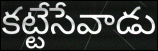
కట్టేసేవాడు